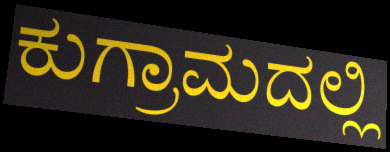
ಕುಗ್ರಾಮದಲ್ಲಿ